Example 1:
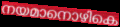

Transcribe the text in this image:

നയമാനൊഴികെ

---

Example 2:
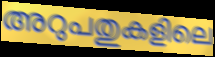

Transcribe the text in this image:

അറുപതുകളിലെ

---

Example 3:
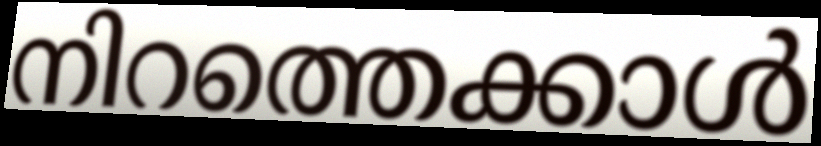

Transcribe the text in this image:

നിറത്തെക്കാൾ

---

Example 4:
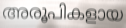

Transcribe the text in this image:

അരൂപികളായ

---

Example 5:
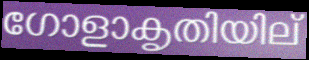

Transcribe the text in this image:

ഗോളാകൃതിയില്